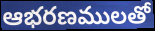
ఆభరణములతో